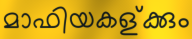
മാഫിയകള്ക്കും